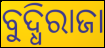
ବୁଦ୍ଧିରାଜା